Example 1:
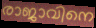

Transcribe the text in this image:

രാജാവിനെ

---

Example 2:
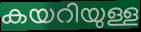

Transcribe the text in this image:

കയറിയുള്ള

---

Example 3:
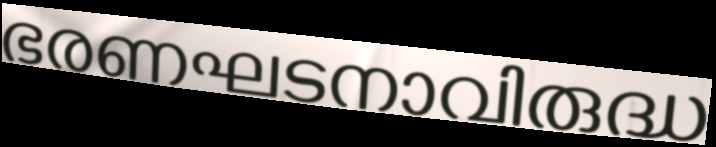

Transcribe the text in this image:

ഭരണഘടനാവിരുദ്ധ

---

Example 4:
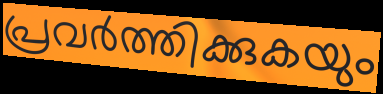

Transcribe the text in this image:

പ്രവർത്തിക്കുകയും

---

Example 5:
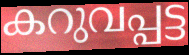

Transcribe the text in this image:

കറുവപ്പട്ട